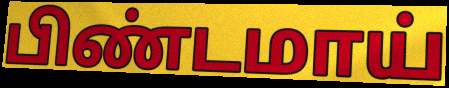
பிண்டமாய்